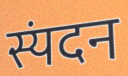
स्यंदन